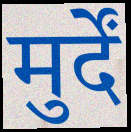
मुर्दें